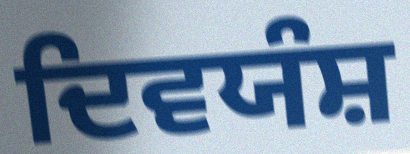
ਦਿਵਯੰਸ਼